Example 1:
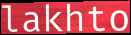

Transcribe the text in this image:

lakhto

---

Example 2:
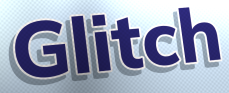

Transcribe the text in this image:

Glitch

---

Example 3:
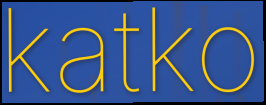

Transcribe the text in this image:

katko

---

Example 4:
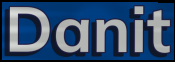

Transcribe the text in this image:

Danit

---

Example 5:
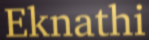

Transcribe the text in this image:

Eknathi